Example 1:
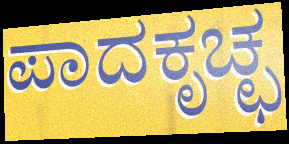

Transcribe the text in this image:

ಪಾದಕೃಚ್ಛ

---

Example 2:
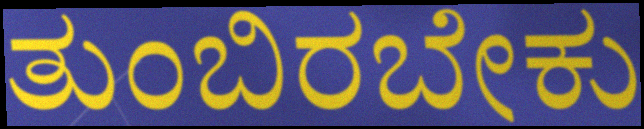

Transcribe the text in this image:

ತುಂಬಿರಬೇಕು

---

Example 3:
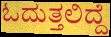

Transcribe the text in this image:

ಓದುತ್ತಲಿದ್ದೆ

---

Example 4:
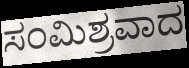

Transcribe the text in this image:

ಸಂಮಿಶ್ರವಾದ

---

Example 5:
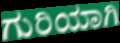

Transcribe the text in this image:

ಗುರಿಯಾಗಿ